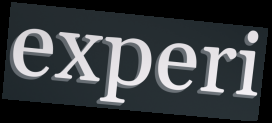
experi